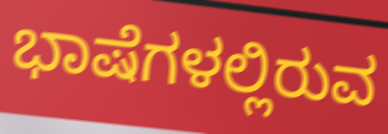
ಭಾಷೆಗಳಲ್ಲಿರುವ